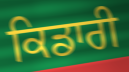
ਕਿਡਾਰੀ